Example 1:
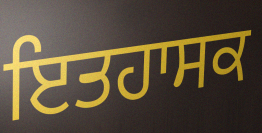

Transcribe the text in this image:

ਇਤਹਾਸਕ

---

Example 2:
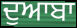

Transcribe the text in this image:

ਦੁਆਬਾ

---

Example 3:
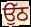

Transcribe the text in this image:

ਉੱਠ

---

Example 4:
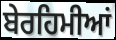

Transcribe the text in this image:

ਬੇਰਹਿਮੀਆਂ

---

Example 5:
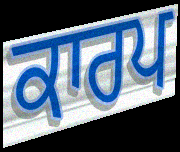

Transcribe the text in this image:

ਕਾਰਪ